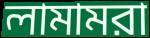
লামামরা